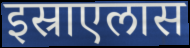
इस्राएलास